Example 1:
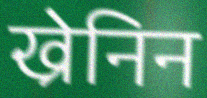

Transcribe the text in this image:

ख्रेनिन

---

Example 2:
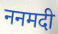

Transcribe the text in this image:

ननमदी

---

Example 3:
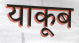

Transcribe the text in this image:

याकूब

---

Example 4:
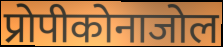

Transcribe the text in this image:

प्रोपीकोनाजोल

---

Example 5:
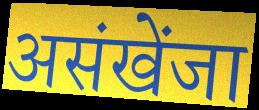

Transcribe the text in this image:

असंखेंजा